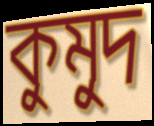
কুমুদ